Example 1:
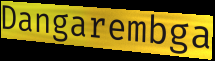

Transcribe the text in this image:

Dangarembga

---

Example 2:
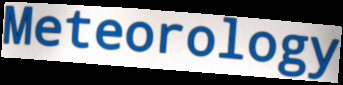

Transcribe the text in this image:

Meteorology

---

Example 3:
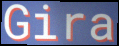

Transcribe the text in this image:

Gira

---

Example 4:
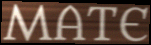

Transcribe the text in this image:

MATE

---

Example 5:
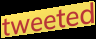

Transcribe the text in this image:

tweeted